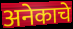
अनेकाचे